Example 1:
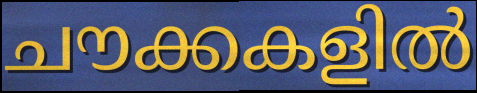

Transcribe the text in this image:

ചൗക്കകളിൽ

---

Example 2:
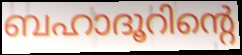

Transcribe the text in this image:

ബഹാദൂറിന്റെ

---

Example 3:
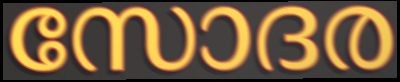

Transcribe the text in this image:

സോദര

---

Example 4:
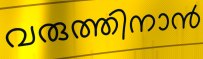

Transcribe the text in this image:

വരുത്തിനാൻ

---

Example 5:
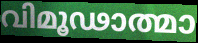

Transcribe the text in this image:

വിമൂഢാത്മാ